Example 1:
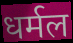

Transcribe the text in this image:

धर्मल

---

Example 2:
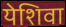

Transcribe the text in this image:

येशिवा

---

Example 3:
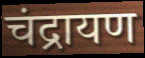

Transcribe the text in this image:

चंद्रायण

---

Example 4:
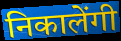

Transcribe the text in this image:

निकालेंगी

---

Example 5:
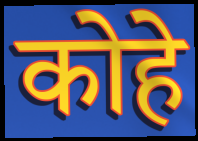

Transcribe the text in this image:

कोहे